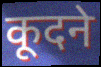
कूदने